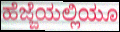
ಹೆಜ್ಜೆಯಲ್ಲಿಯೂ